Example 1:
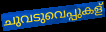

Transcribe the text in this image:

ചുവടുവെപ്പുകള്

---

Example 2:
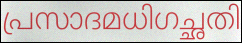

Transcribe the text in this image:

പ്രസാദമധിഗച്ഛതി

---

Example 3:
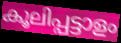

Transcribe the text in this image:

കൂലിപ്പട്ടാളം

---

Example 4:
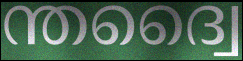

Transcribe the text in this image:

ന്തദ്വൈ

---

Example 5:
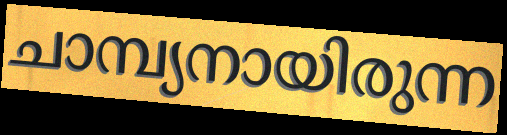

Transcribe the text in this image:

ചാമ്പ്യനായിരുന്ന